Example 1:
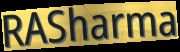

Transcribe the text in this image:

RASharma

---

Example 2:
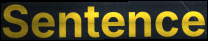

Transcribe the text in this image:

Sentence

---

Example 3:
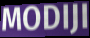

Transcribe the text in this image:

MODIJI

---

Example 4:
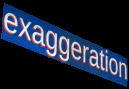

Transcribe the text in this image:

exaggeration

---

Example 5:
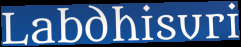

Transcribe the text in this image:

Labdhisuri